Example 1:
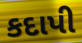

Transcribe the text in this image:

કદાપી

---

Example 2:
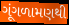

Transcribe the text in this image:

ગૂંગળામણથી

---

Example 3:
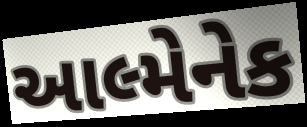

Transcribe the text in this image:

આલ્મેનેક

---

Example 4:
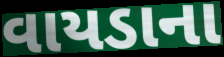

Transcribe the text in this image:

વાયડાના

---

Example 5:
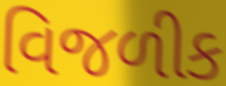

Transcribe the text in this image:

વિજળીક